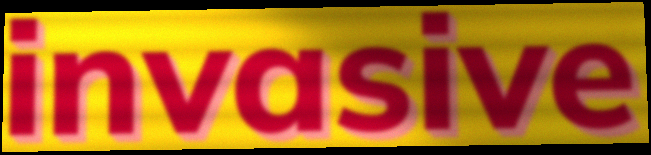
invasive